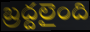
బ్రద్దలైంది